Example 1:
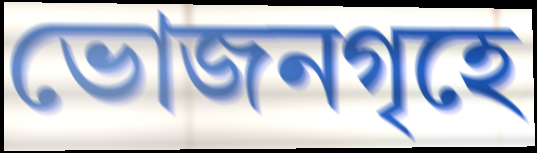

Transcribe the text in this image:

ভোজনগৃহে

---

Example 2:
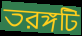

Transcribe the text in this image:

তরঙ্গটি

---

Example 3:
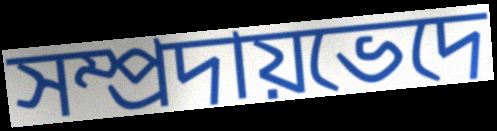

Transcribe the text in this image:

সম্প্রদায়ভেদে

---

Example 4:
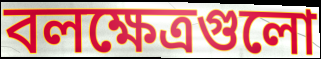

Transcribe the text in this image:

বলক্ষেত্রগুলো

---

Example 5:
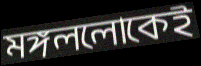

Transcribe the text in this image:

মঙ্গললোকেই